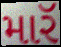
મારૅ